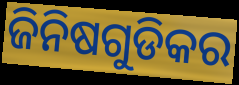
ଜିନିଷଗୁଡିକର